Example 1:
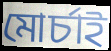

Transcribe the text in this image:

মোর্চাই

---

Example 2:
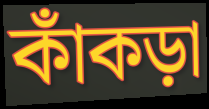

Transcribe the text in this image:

কাঁকড়া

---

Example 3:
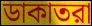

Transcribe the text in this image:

ডাকাতরা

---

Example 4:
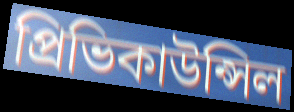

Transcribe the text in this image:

প্রিভিকাউন্সিল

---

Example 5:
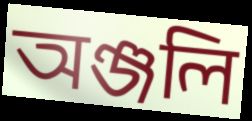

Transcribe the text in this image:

অঞ্জলি